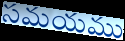
సమయము